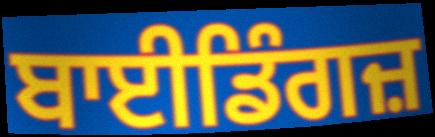
ਬਾਈਡਿੰਗਜ਼